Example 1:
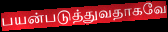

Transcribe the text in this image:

பயன்படுத்துவதாகவே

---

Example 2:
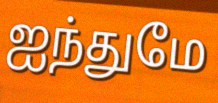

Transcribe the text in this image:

ஐந்துமே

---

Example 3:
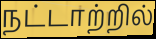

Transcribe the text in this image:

நட்டாற்றில்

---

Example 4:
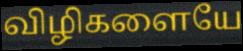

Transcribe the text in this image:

விழிகளையே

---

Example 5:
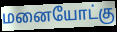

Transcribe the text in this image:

மனையோட்கு